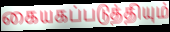
கையகப்படுத்தியும்